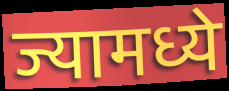
ज्यामध्ये